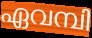
ഏവമ്പി